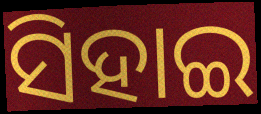
ସିହାଇ